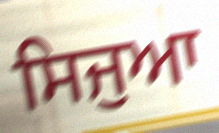
ਸਿਜੁਆ